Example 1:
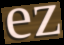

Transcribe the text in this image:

ez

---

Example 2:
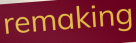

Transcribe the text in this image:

remaking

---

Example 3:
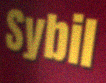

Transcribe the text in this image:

Sybil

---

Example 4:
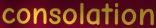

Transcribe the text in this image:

consolation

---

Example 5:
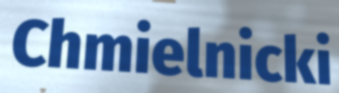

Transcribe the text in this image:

Chmielnicki